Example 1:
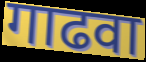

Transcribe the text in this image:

गाढवा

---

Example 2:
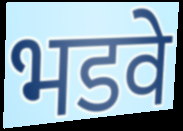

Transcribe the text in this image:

भडवे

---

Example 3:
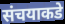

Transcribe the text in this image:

संचयाकडे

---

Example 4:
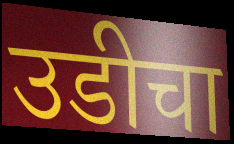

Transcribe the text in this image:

उडीचा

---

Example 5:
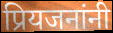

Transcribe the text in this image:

प्रियजनांनी